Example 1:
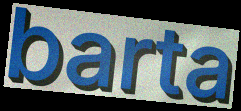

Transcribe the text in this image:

barta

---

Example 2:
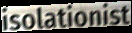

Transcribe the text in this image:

isolationist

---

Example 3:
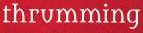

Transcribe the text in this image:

thrumming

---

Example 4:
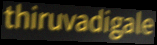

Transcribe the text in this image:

thiruvadigale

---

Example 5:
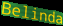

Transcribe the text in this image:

Belinda